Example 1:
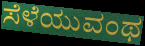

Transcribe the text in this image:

ಸೆಳೆಯುವಂಥ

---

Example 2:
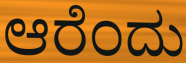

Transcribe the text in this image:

ಆರೆಂದು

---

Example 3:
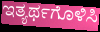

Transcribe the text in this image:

ಇತ್ಯರ್ಥಗೊಳಿಸಿ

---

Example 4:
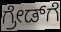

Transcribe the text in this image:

ಗ್ರೇಡ್‌ಗೆ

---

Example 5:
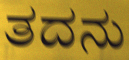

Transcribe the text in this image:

ತದನು